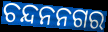
ଚନ୍ଦନନଗର